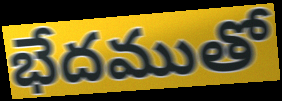
భేదముతో